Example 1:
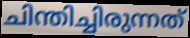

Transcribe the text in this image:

ചിന്തിച്ചിരുന്നത്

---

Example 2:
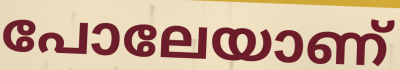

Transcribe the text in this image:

പോലേയാണ്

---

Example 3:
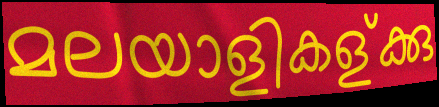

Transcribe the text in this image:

മലയാളികള്ക്കു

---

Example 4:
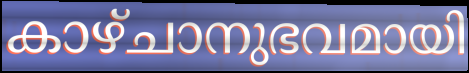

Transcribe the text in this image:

കാഴ്ചാനുഭവമായി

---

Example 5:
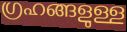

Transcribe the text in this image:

ഗ്രഹങ്ങളുള്ള